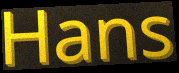
Hans